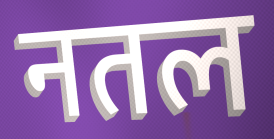
नतल